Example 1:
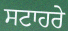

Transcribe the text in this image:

ਸਟਾਹਰੇ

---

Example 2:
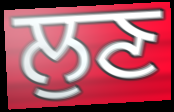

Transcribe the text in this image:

ਲੁਣ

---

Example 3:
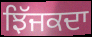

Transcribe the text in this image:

ਝਿੱਜਕਦਾ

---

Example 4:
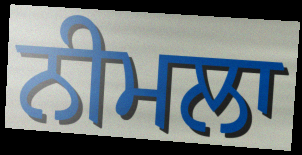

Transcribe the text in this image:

ਨੀਮਲਾ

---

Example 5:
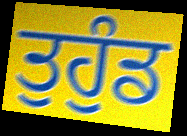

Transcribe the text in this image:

ਤੁਹੁੰਡ